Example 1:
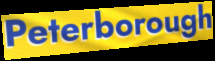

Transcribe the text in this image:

Peterborough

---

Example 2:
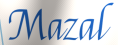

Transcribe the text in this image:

Mazal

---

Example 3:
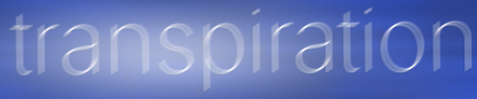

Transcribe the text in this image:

transpiration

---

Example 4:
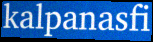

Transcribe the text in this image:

kalpanasfi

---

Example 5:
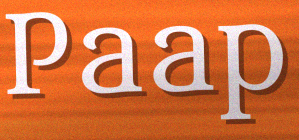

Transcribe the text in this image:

Paap